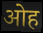
ओह